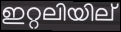
ഇറ്റലിയില്